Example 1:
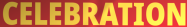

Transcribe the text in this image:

CELEBRATION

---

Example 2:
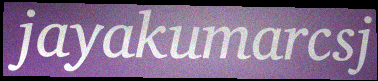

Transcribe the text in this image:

jayakumarcsj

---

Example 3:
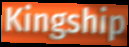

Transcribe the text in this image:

Kingship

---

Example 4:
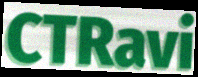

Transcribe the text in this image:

CTRavi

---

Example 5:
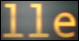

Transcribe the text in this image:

lle